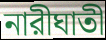
নারীঘাতী